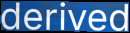
derived